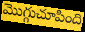
మొగ్గుచూపింది